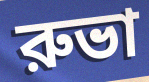
রুভা